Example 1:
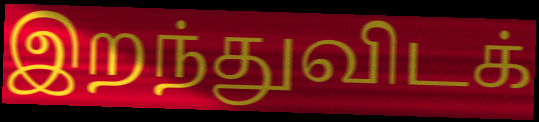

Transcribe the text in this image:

இறந்துவிடக்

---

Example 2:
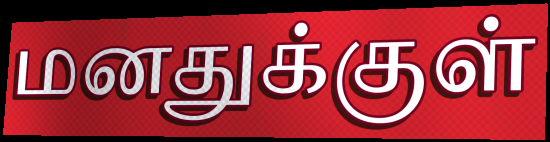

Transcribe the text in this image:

மனதுக்குள்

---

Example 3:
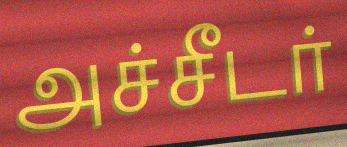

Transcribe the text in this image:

அச்சீடர்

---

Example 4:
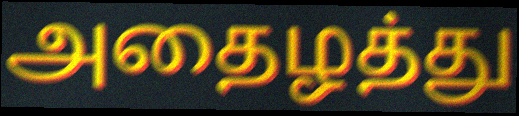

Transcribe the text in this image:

அதைழத்து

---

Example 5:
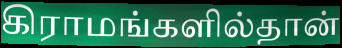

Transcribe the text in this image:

கிராமங்களில்தான்